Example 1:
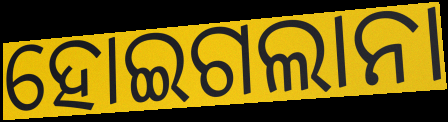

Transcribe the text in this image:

ହୋଇଗଲାନା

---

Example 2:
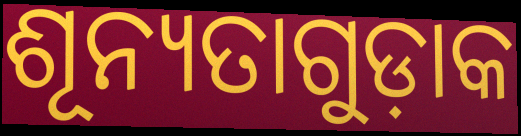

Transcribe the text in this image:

ଶୂନ୍ୟତାଗୁଡ଼ାକ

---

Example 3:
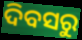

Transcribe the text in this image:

ଦିବସରୁ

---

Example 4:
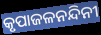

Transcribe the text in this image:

କୃପାଜଳନନ୍ଦିନୀ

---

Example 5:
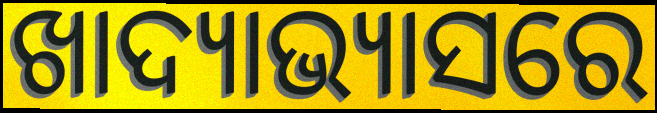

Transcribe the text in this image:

ଖାଦ୍ୟାଭ୍ୟାସରେ